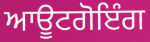
ਆਊਟਗੋਇੰਗ